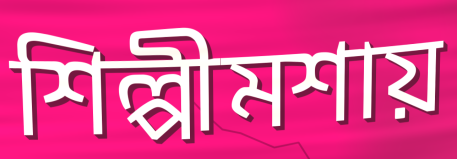
শিল্পীমশায়